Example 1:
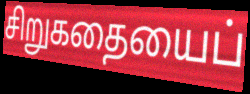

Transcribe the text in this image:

சிறுகதையைப்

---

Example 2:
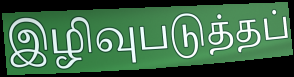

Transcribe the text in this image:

இழிவுபடுத்தப்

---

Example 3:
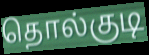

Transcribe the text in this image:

தொல்குடி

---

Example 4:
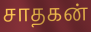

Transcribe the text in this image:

சாதகன்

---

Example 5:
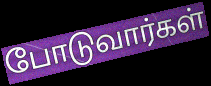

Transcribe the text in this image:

போடுவார்கள்